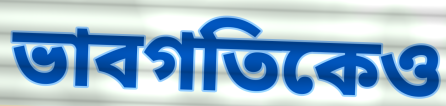
ভাবগতিকেও